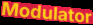
Modulator